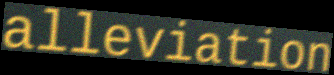
alleviation